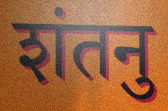
शंतनु